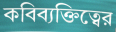
কবিব্যক্তিত্বের